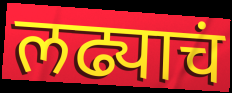
लढ्याचं